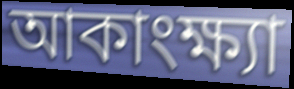
আকাংক্ষ্যা